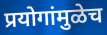
प्रयोगांमुळेच